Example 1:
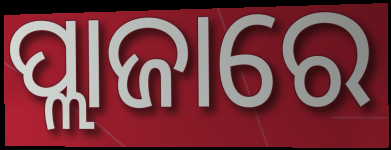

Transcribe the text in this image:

ପ୍ଲାଜାରେ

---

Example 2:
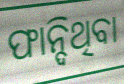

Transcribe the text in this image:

ଫାନ୍ଦିଥିବା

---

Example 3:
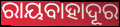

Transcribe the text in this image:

ରାୟବାହାଦୂର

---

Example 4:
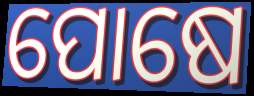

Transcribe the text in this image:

ପୋଷେ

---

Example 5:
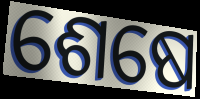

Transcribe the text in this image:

ଶେଷେ